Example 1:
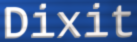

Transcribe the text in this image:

Dixit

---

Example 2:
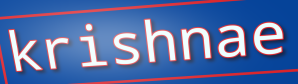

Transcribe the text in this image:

krishnae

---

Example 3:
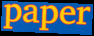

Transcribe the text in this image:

paper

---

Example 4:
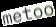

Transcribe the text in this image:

metoo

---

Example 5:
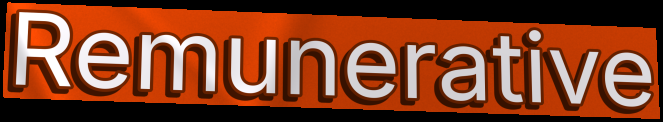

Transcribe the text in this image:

Remunerative